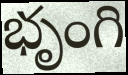
భృంగి